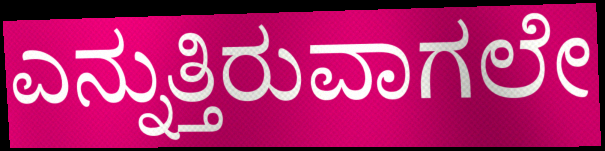
ಎನ್ನುತ್ತಿರುವಾಗಲೇ